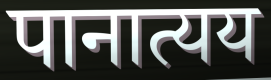
पानात्यय